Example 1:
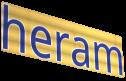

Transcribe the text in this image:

heram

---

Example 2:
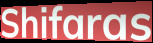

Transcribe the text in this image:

Shifaras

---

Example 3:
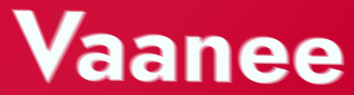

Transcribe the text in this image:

Vaanee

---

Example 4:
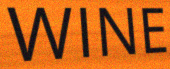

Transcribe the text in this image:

WINE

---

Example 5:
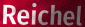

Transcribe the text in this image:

Reichel